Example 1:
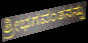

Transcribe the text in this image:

ಶ್ರೀಭಗವಂತನನ್ನು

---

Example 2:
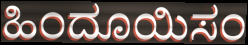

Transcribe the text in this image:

ಹಿಂದೂಯಿಸಂ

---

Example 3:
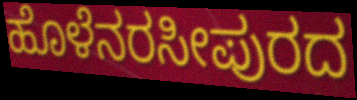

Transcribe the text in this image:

ಹೊಳೆನರಸೀಪುರದ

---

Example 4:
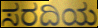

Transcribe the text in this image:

ಸರದಿಯ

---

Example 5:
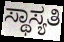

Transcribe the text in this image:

ಸ್ಥಾಸ್ಯತಿ